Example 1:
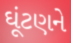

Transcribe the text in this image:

ઘૂંટણને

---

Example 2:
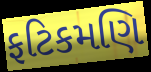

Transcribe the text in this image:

ફટિકમણિ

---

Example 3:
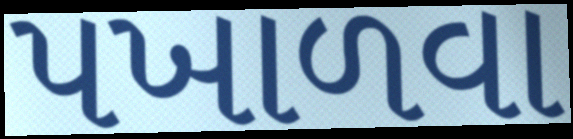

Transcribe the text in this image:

પખાળવા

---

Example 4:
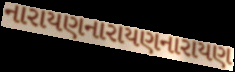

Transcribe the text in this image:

નારાયણનારાયણનારાયણ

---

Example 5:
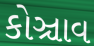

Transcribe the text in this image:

કોઞ્ચાવ